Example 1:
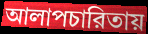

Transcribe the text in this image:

আলাপচারিতায়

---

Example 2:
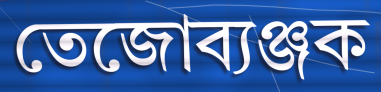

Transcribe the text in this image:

তেজোব্যঞ্জক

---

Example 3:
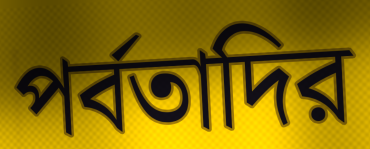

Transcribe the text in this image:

পর্বতাদির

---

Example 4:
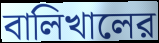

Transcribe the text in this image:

বালিখালের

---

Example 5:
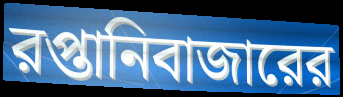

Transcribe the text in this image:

রপ্তানিবাজারের